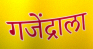
गजेंद्राला